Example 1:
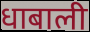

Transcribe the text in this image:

धाबाली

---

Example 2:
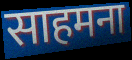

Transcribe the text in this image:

साहमना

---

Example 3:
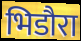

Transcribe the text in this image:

भिडौरा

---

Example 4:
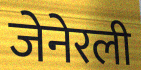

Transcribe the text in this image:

जेनेरली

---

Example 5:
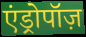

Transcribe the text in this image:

एंड्रोपॉज़